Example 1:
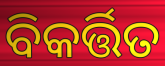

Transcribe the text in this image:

ବିକର୍ତ୍ତିତ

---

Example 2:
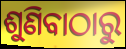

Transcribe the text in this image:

ଶୁଣିବାଠାରୁ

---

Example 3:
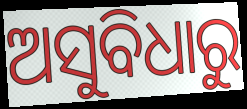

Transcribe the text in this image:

ଅସୁବିଧାରୁ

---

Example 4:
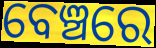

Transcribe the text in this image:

ବେଞ୍ଚରେ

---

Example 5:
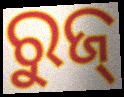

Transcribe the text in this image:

ରୁଜ୍